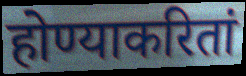
होण्याकरितां